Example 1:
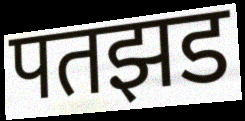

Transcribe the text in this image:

पतझड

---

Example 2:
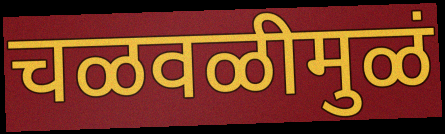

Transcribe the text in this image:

चळवळीमुळं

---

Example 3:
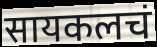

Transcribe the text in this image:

सायकलचं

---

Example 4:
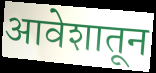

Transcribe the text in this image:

आवेशातून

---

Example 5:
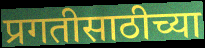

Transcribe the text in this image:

प्रगतीसाठीच्या